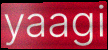
yaagi